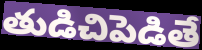
తుడిచిపెడితే